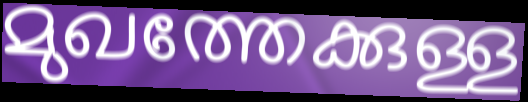
മുഖത്തേക്കുള്ള